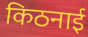
किठनाई